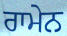
ਰਾਮੇਨ